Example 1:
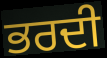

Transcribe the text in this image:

ਭਰਦੀ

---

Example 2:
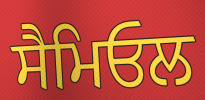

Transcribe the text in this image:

ਸੈਮਿਓਲ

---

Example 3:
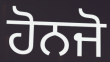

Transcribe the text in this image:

ਹੋਨਜੋ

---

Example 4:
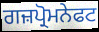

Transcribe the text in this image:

ਗਜ਼ਪ੍ਰੋਮਨੇਫਟ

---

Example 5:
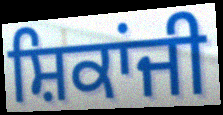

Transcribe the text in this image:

ਸ਼ਿਕਾਂਜੀ